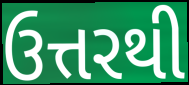
ઉત્તરથી